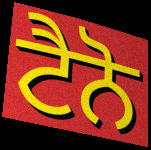
ਟੈਨੋ